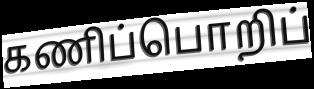
கணிப்பொறிப்